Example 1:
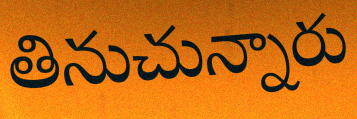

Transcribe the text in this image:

తినుచున్నారు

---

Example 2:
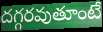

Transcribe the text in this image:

దగ్గరవుతూంటే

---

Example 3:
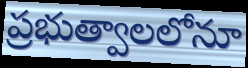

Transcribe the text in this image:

ప్రభుత్వాలలోనూ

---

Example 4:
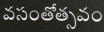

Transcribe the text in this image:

వసంతోత్సవం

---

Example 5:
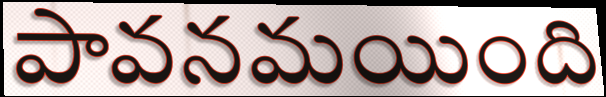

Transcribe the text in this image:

పావనమయింది